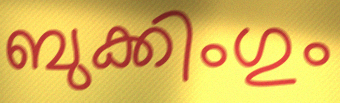
ബുക്കിംഗും